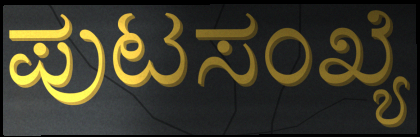
ಪುಟಸಂಖ್ಯೆ